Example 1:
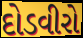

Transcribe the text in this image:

દોડવીરો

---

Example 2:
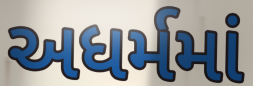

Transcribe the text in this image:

અધર્મમાં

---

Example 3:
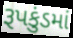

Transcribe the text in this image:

રૂપકુંડમાં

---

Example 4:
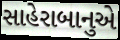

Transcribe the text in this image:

સાહેરાબાનુએ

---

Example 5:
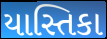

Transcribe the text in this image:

યાસ્તિકા